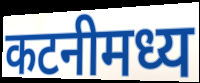
कटनीमध्य